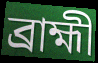
ব্ৰাহ্মী